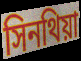
সিনথিয়া